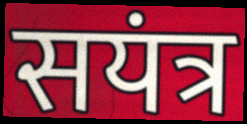
सयंत्र